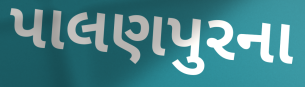
પાલણપુરના